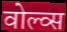
वोल्व्स